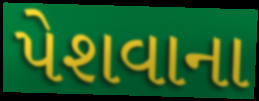
પેશવાના